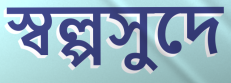
স্বল্পসুদে